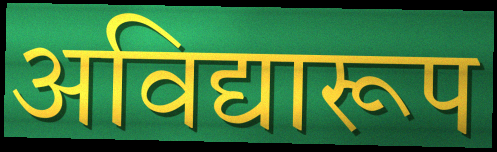
अविद्यारूप